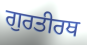
ਗੁਰਤੀਰਥ